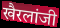
खैरलांजी